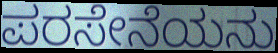
ಪರಸೇನೆಯನು